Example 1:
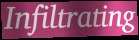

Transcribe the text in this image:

Infiltrating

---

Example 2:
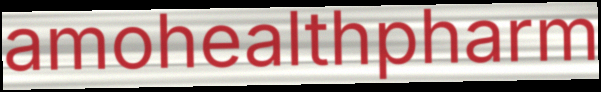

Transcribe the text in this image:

amohealthpharm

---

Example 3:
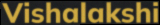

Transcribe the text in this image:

Vishalakshi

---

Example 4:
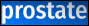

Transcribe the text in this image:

prostate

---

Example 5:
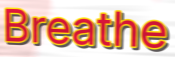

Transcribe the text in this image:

Breathe